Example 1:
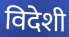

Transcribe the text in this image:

विदेशी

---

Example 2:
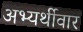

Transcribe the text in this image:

अभ्यर्थीवार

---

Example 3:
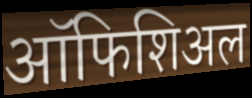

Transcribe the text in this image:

ऑफिशिअल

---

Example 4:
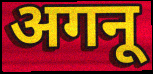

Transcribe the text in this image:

अगनू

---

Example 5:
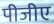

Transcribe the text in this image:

पीजीए